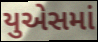
યુએસમાં